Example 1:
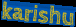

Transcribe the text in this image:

karishu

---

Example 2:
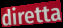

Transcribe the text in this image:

diretta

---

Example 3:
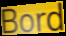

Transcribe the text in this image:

Bord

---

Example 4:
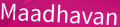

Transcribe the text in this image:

Maadhavan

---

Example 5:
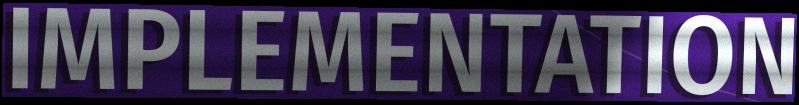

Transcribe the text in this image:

IMPLEMENTATION